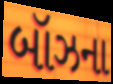
બૉઝના